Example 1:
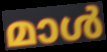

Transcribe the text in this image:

മാൾ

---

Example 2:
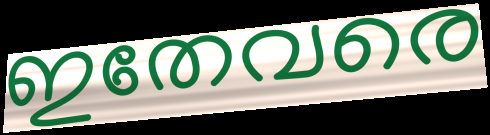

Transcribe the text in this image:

ഇതേവരെ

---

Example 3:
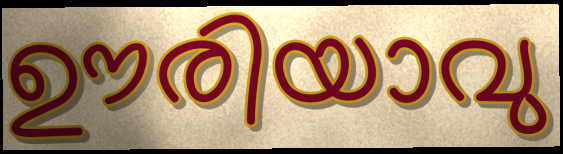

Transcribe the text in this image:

ഊരിയാവു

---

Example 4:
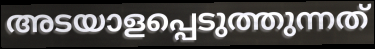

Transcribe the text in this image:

അടയാളപ്പെടുത്തുന്നത്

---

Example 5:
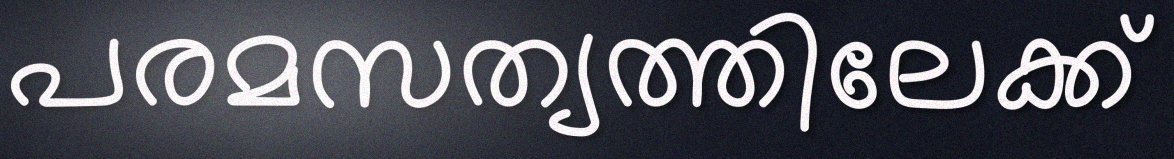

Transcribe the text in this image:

പരമസത്യത്തിലേക്ക്